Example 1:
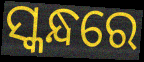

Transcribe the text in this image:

ସ୍କନ୍ଧରେ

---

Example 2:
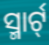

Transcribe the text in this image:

ସ୍ମାର୍ଟ୍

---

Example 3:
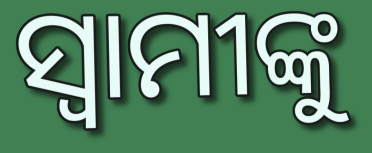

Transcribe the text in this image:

ସ୍ୱାମୀଙ୍କୁ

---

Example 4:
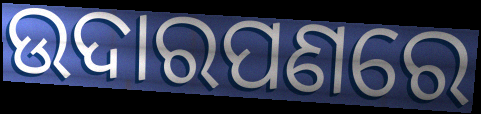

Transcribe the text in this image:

ଉଦାରପଣରେ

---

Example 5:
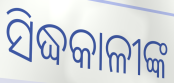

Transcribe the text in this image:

ସିଦ୍ଧକାଳୀଙ୍କ